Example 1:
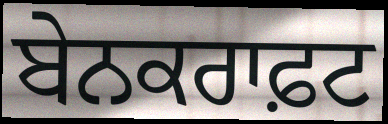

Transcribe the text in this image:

ਬੇਨਕਰਾਫ਼ਟ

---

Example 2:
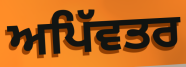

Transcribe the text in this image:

ਅਪਿੱਵਤਰ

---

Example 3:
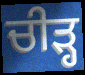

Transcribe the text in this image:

ਚੀੜ੍ਹ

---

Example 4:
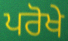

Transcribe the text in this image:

ਪਰੋਖੇ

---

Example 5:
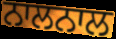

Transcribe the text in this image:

ਨਾਲਨਾਲ